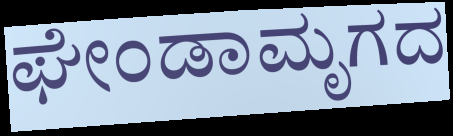
ಘೇಂಡಾಮೃಗದ